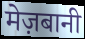
मेज़बानी